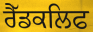
ਰੈੱਡਕਲਿਫ